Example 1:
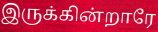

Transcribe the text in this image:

இருக்கின்றாரே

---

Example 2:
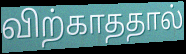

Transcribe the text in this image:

விற்காததால்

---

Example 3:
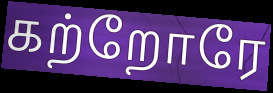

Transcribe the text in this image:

கற்றோரே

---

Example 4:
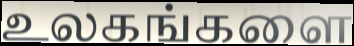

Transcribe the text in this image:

உலகங்களை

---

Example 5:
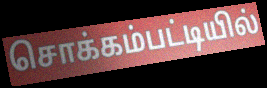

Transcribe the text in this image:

சொக்கம்பட்டியில்